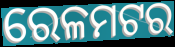
ରେଳମଟର